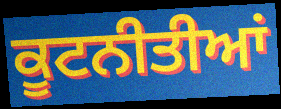
ਕੂਟਨੀਤੀਆਂ